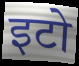
इटो